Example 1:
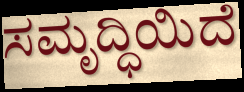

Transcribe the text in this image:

ಸಮೃದ್ಧಿಯಿದೆ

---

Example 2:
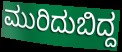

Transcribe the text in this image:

ಮುರಿದುಬಿದ್ದ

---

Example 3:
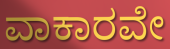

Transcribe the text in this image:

ವಾಕಾರವೇ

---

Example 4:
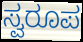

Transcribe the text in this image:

ಸ್ವರೂಪ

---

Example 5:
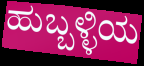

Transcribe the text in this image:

ಹುಬ್ಬಳ್ಳಿಯ